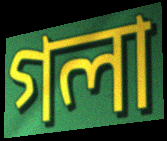
গলা